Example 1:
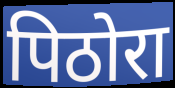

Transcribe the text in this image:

पिठोरा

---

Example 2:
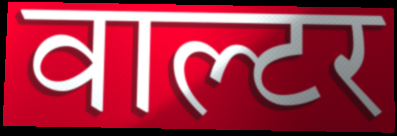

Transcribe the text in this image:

वाल्टर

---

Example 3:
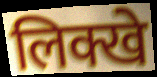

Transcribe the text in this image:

लिक्खे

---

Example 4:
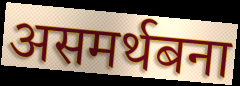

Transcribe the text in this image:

असमर्थबना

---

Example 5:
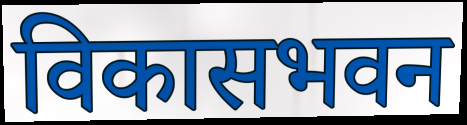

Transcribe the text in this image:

विकासभवन